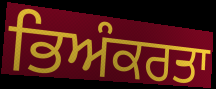
ਭਿਅੰਕਰਤਾ